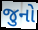
જુનો